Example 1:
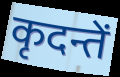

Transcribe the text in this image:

कृदन्तें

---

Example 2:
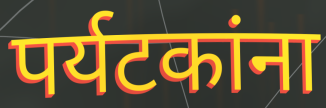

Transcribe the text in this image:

पर्यटकांना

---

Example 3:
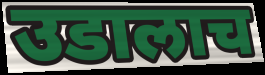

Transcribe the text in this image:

उडालाच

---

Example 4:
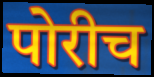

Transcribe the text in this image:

पोरीच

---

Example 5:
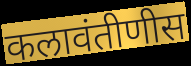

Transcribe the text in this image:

कलावंतीणीस